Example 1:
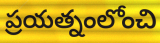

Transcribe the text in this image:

ప్రయత్నంలోంచి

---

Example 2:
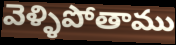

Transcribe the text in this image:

వెళ్ళిపోతాము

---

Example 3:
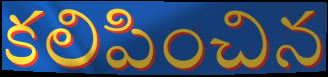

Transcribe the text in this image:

కలిపించిన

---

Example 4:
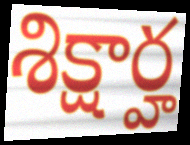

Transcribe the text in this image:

శిక్షార్హ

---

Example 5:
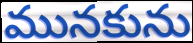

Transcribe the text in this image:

మునకును